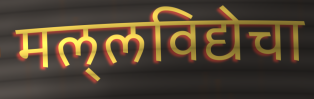
मल्लविद्येचा